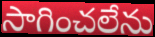
సాగించలేను